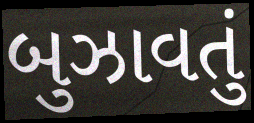
બુઝાવતું